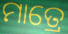
ମାତ୍ରେ